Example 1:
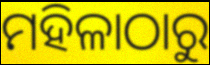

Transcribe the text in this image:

ମହିଳାଠାରୁ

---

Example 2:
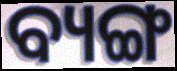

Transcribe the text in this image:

ବ୍ୟଙ୍ଗ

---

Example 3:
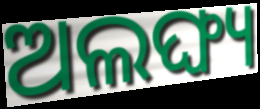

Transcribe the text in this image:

ଅଲଙ୍ଘ୍ୟ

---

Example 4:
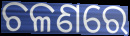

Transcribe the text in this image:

ଚଳଣରେ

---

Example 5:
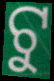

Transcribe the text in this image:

ଟୁ